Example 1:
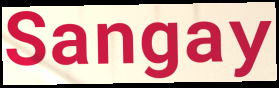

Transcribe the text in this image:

Sangay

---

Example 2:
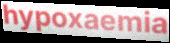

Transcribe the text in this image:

hypoxaemia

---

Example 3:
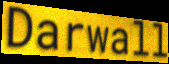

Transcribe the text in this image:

Darwall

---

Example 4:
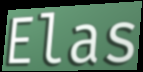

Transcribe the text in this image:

Elas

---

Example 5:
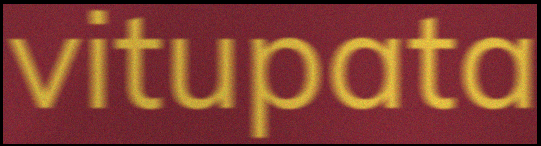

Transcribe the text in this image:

vitupata